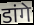
डांगे